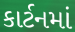
કાર્ટનમાં